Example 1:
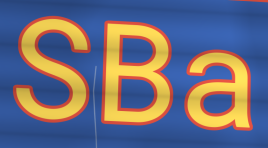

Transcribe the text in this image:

SBa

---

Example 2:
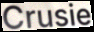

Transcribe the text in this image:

Crusie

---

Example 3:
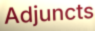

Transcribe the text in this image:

Adjuncts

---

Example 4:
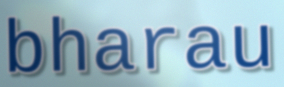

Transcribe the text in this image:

bharau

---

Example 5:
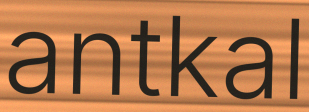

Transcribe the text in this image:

antkal